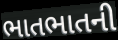
ભાતભાતની